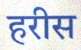
हरीस